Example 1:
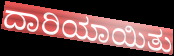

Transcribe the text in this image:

ದಾರಿಯಾಯಿತು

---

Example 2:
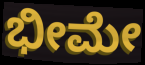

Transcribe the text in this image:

ಭೀಮೇ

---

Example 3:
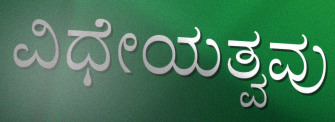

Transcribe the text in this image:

ವಿಧೇಯತ್ವವು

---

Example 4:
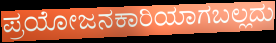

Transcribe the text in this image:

ಪ್ರಯೋಜನಕಾರಿಯಾಗಬಲ್ಲದು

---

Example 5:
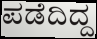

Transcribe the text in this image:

ಪಡೆದಿದ್ದ